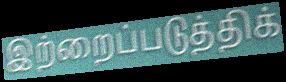
இற்றைப்படுத்திக்